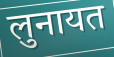
लुनायत